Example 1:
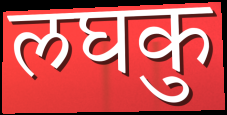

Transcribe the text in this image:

लघकु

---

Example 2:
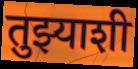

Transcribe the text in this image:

तुझ्याशी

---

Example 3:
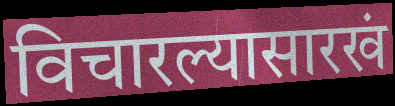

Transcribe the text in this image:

विचारल्यासारखं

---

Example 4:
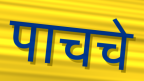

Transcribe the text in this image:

पाचचे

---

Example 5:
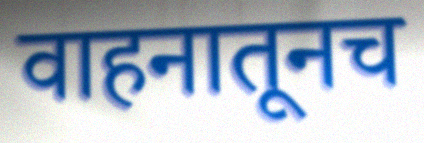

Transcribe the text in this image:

वाहनातूनच